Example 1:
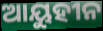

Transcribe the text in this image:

ଆୟୁହୀନ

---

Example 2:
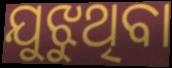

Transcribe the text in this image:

ଯୁଝୁଥିବା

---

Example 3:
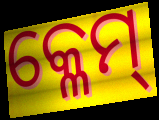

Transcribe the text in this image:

କ୍ଳେମ୍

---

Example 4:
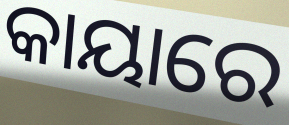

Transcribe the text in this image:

କାୟାରେ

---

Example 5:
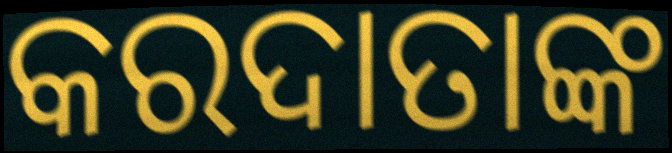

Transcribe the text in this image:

କରଦାତାଙ୍କ